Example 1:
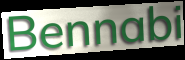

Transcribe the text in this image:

Bennabi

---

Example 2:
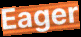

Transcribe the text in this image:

Eager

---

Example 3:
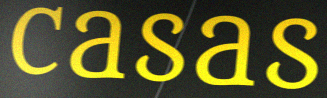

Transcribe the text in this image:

casas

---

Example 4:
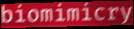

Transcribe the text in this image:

biomimicry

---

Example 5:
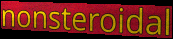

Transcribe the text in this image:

nonsteroidal